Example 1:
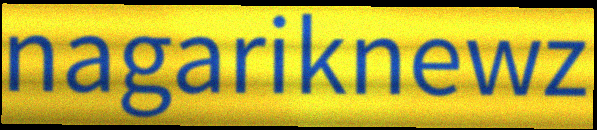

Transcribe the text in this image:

nagariknewz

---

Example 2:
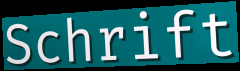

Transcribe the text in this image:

Schrift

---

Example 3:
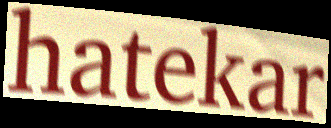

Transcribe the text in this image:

hatekar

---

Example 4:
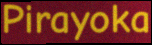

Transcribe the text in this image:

Pirayoka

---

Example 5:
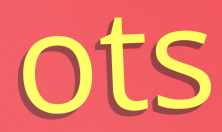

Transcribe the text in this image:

ots